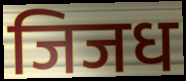
जिजध